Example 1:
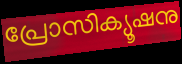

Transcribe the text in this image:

പ്രോസിക്യൂഷനു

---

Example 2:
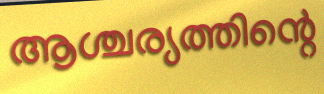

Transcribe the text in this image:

ആശ്ചര്യത്തിന്റെ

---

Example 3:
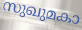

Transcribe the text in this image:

സുഖുമകാ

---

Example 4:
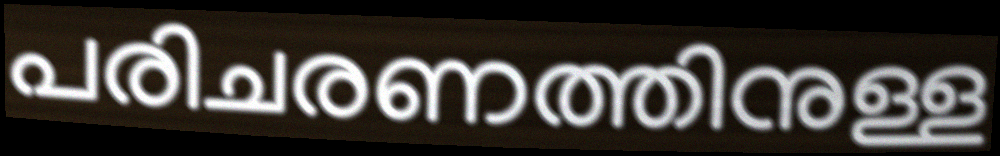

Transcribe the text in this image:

പരിചരണത്തിനുള്ള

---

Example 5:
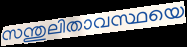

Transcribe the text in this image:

സന്തുലിതാവസ്ഥയെ